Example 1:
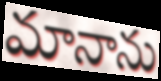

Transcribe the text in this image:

మానాను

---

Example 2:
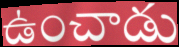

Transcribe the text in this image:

ఉంచాడు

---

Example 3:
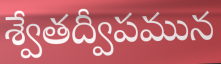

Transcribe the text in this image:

శ్వేతద్వీపమున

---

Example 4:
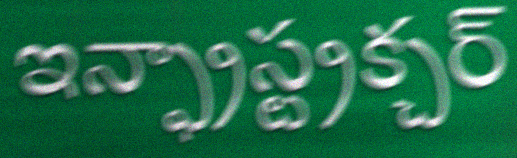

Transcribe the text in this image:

ఇన్ఫ్రాస్ట్రక్చర్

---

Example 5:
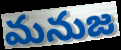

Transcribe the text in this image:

మనుజ